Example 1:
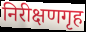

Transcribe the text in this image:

निरीक्षणगृह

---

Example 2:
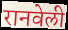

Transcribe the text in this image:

रानवेली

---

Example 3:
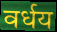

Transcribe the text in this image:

वर्धय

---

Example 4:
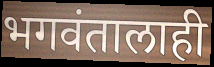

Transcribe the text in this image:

भगवंतालाही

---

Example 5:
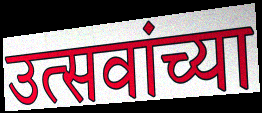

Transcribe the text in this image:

उत्सवांच्या